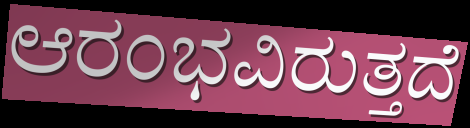
ಆರಂಭವಿರುತ್ತದೆ